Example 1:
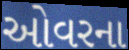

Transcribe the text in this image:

ઓવરના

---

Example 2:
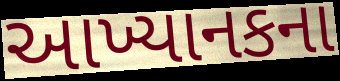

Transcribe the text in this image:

આખ્યાનકના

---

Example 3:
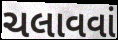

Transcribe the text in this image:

ચલાવવાં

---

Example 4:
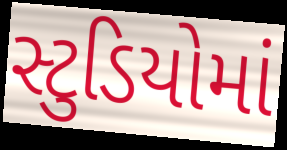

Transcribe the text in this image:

સ્ટુડિયોમાં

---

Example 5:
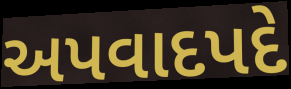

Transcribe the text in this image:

અપવાદપદે